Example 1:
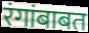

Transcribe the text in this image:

रंगांबाबत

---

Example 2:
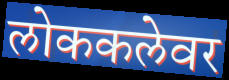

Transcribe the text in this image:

लोककलेवर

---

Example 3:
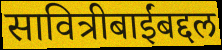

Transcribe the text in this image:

सावित्रीबाईंबद्दल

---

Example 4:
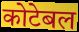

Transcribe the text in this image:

कोटेबल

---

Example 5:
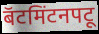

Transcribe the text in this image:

बॅटमिंटनपटू